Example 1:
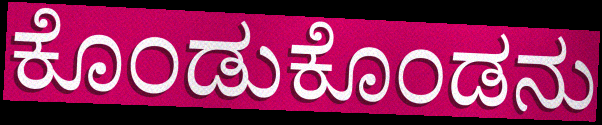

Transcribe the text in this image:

ಕೊಂಡುಕೊಂಡನು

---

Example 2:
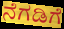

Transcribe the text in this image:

ನೆಗಡಿಗೆ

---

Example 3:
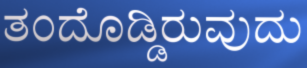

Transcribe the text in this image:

ತಂದೊಡ್ಡಿರುವುದು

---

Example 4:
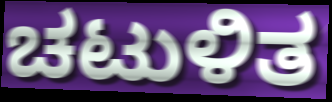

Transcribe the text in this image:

ಚಟುಳಿತ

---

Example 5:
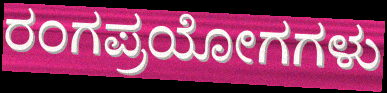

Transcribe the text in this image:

ರಂಗಪ್ರಯೋಗಗಳು